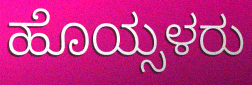
ಹೊಯ್ಸಳರು